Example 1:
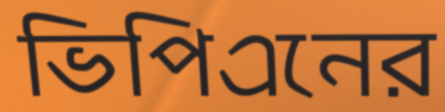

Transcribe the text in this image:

ভিপিএনের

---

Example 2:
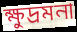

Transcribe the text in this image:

ক্ষুদ্রমনা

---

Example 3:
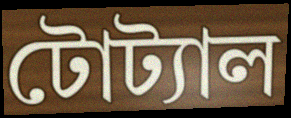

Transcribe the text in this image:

টোট্যাল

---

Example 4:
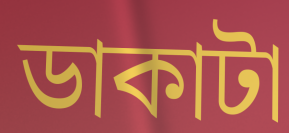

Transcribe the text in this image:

ডাকাটা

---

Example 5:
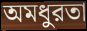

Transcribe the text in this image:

অমধুরতা